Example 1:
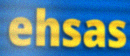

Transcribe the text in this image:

ehsas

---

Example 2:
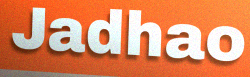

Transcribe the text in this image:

Jadhao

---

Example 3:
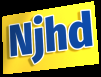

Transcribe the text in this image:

Njhd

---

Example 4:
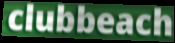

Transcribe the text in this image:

clubbeach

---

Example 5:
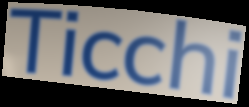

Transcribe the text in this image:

Ticchi